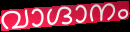
വാഗ്ദാനം